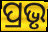
ପ୍ରଭୃ